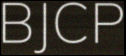
BJCP